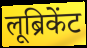
लूब्रिकेंट